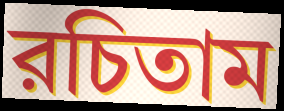
রচিতাম